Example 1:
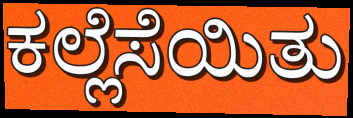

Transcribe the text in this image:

ಕಲ್ಲೆಸೆಯಿತು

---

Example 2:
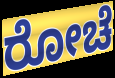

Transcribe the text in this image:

ರೋಚೆ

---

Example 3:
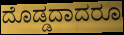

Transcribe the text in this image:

ದೊಡ್ಡದಾದರೂ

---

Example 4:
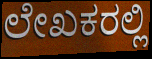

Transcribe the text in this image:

ಲೇಖಕರಲ್ಲಿ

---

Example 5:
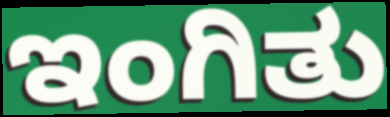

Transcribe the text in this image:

ಇಂಗಿತು